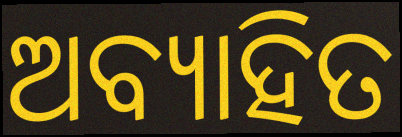
ଅବ୍ୟାହିତ